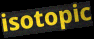
isotopic